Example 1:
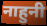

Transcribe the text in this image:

नाहुनी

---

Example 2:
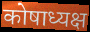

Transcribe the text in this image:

कोषाध्यक्ष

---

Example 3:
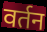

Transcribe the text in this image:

वर्तन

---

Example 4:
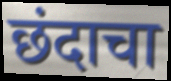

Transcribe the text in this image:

छंदाचा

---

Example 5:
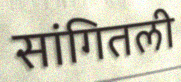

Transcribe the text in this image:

सांगितली